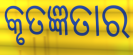
କୃତଜ୍ଞତାର